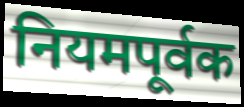
नियमपूर्वक